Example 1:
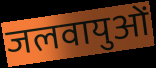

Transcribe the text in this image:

जलवायुओं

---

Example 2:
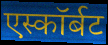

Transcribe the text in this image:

एस्कॉर्बट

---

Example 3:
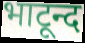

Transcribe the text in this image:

भाटून्द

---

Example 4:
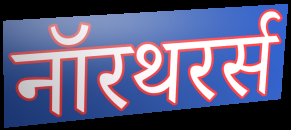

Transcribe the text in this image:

नॉरथरर्स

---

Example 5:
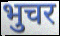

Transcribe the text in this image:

भुचर